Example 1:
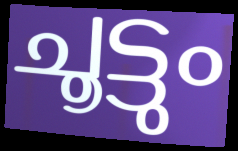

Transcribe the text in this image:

ചൂട്ടും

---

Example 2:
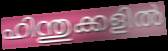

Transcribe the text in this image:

ഹിന്തുക്കളിൽ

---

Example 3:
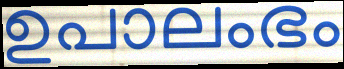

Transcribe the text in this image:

ഉപാലംഭം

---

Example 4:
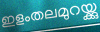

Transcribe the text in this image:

ഇളംതലമുറയ്ക്കു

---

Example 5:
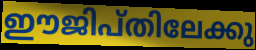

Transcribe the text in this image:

ഈജിപ്തിലേക്കു